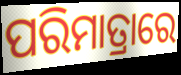
ପରିମାତ୍ରାରେ